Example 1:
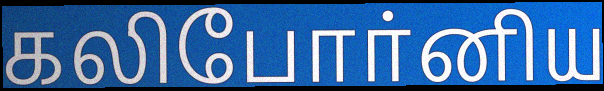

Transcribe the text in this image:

கலிபோர்னிய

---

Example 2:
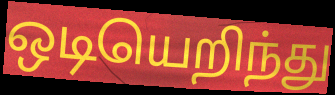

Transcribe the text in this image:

ஒடியெறிந்து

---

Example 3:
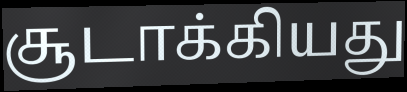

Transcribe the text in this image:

சூடாக்கியது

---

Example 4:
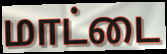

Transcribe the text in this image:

மாட்டை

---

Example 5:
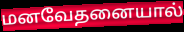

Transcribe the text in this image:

மனவேதனையால்